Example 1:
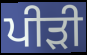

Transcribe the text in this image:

ਪੀੜੀ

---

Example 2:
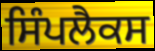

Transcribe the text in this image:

ਸਿੰਪਲੈਕਸ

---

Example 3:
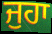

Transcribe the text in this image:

ਜੁਹਾ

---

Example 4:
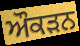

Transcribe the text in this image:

ਔਕੜਨ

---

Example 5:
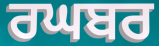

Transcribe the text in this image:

ਰਘਬਰ